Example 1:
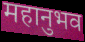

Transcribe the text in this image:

महानुभव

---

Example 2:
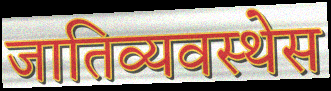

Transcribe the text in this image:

जातिव्यवस्थेस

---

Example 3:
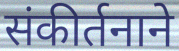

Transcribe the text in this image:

संकीर्तनाने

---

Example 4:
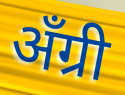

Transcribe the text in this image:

अँग्री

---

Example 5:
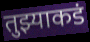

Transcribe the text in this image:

तुझ्याकडं